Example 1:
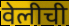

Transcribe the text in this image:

वेलीची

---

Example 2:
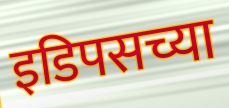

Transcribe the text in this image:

इडिपसच्या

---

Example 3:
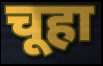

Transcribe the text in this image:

चूहा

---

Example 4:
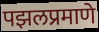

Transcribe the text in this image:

पझलप्रमाणे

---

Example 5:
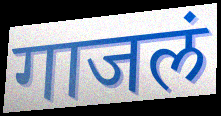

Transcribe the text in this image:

गाजलं